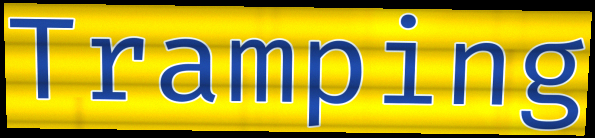
Tramping